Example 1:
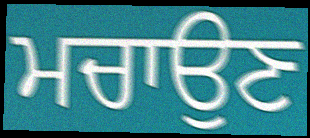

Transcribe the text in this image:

ਮਚਾਉਣ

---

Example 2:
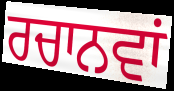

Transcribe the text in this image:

ਰਚਾਨਵਾਂ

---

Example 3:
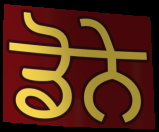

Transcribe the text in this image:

ਡੋਨੇ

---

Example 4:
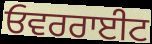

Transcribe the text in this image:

ਓਵਰਰਾਈਟ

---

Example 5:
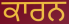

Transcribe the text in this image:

ਕਾਰਨ